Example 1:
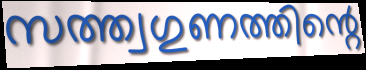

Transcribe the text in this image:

സത്ത്വഗുണത്തിന്റെ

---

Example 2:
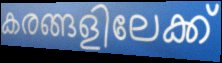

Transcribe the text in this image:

കരങ്ങളിലേക്ക്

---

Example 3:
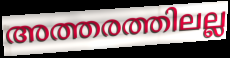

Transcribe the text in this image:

അത്തരത്തിലല്ല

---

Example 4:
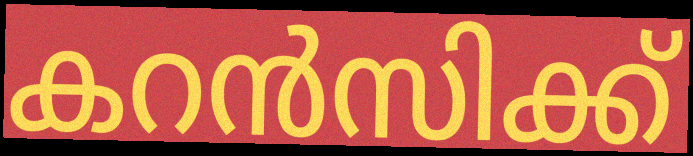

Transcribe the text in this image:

കറൻസിക്ക്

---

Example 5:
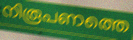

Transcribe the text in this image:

നിരൂപണത്തെ